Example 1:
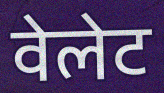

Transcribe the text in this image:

वेलेट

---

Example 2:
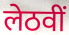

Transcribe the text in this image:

लेठवीं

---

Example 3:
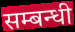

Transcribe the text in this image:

सम्‍बन्‍धी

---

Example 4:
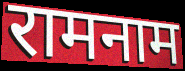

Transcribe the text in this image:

रामनाम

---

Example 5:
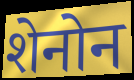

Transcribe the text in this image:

शेनोन